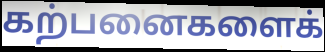
கற்பனைகளைக்